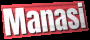
Manasi